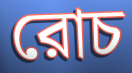
রোচ